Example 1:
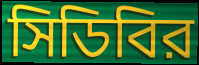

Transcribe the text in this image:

সিডিবির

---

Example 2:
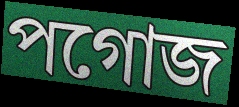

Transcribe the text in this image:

পগোজ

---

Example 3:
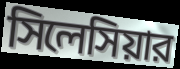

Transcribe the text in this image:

সিলেসিয়ার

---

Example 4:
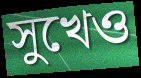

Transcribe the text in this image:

সুখেও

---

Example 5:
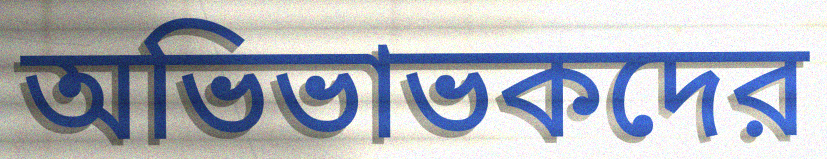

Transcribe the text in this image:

অভিভাভকদের